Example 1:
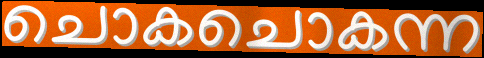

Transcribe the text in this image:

ചൊകചൊകന്ന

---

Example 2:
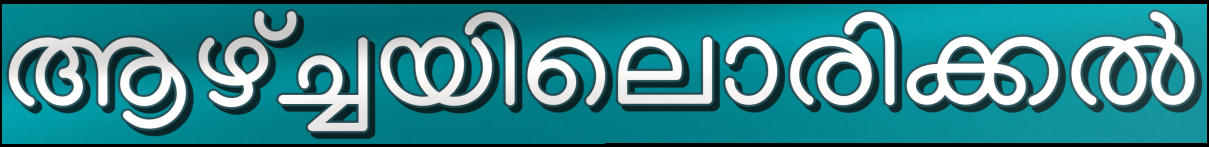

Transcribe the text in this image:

ആഴ്ച്ചയിലൊരിക്കൽ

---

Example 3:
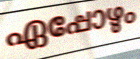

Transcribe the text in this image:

ഏപ്പോഴും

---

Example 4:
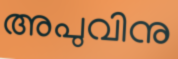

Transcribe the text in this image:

അപുവിനു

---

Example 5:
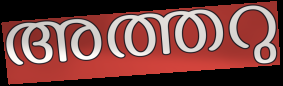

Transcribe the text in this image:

അത്തറു